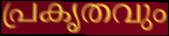
പ്രകൃതവും